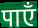
पाएँ